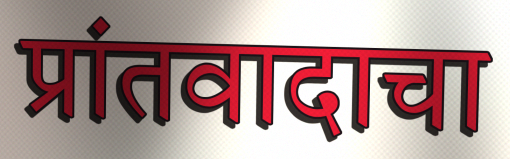
प्रांतवादाचा